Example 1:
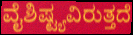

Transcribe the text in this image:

ವೈಶಿಷ್ಟ್ಯವಿರುತ್ತದೆ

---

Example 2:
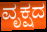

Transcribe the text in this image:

ವೃಕ್ಷದ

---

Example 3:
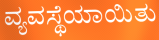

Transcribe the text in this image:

ವ್ಯವಸ್ಥೆಯಾಯಿತು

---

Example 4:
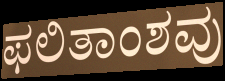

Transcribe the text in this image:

ಫಲಿತಾಂಶವು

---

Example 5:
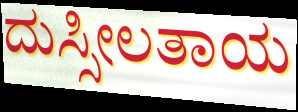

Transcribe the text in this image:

ದುಸ್ಸೀಲತಾಯ